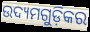
ଉଦ୍ୟମଗୁଡ଼ିକର